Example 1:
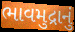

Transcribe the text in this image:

ભાવમુદ્રાનું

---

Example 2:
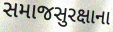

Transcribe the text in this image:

સમાજસુરક્ષાના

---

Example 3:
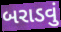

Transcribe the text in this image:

બરાડવું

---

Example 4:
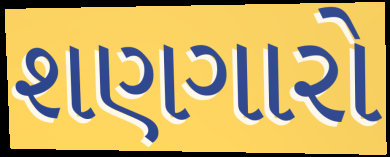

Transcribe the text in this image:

શણગારો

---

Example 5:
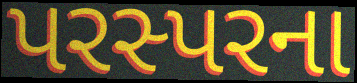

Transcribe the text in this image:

પરસ્પરના